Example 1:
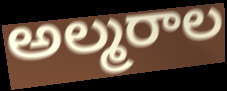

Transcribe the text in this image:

అల్మరాల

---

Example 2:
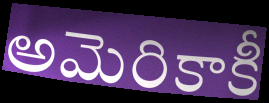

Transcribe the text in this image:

అమెరికాకీ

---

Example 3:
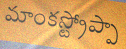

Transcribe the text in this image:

మాంకస్ట్రోప్పా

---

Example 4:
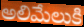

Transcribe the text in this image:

అలిమేలుకి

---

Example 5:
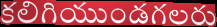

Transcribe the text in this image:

కలిగియుండగలరు